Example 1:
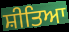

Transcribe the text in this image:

ਸ਼ੀਤਿਆ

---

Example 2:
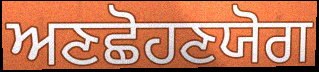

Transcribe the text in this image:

ਅਣਛੋਹਣਯੋਗ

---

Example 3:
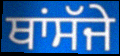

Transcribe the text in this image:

ਥਾਂਸੱਜੇ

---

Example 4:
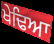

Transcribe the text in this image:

ਖੇਢਿਆ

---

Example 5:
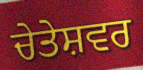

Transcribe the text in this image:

ਚੇਤੇਸ਼ਵਰ